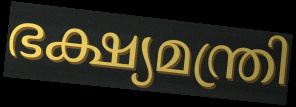
ഭക്ഷ്യമന്ത്രി